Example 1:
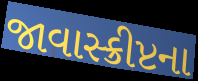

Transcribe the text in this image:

જાવાસ્ક્રીપ્ટના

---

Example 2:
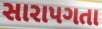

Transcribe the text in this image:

સારાપગતા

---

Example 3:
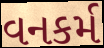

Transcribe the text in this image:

વનકર્મ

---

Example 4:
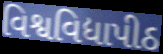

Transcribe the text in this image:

વિશ્વવિદ્યાપીઠ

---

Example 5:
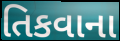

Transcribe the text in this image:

તિકવાના